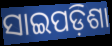
ସାଇପଡ଼ିଶା